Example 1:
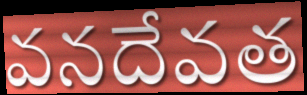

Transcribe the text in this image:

వనదేవత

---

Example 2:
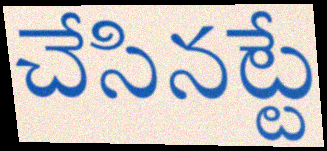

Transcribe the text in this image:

చేసినట్టే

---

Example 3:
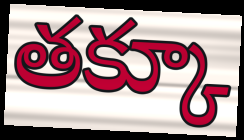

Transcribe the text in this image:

తక్కూ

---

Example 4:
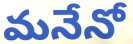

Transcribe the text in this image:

మనేనో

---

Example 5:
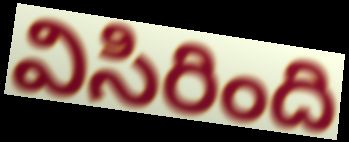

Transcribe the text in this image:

విసిరింది